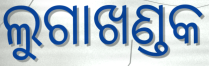
ଲୁଗାଖଣ୍ଡକ